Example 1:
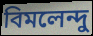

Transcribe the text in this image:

বিমলেন্দু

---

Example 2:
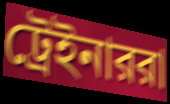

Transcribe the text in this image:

ট্রেইনাররা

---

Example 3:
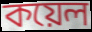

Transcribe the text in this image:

কয়েল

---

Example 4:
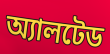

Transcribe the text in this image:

অ্যালটেড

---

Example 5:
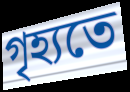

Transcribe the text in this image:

গৃহ্যতে